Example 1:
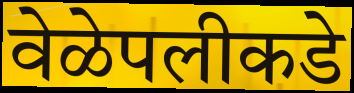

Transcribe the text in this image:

वेळेपलीकडे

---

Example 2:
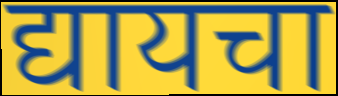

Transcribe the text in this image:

द्यायचा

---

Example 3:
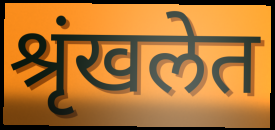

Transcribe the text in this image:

श्रृंखलेत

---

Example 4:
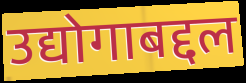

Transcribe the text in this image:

उद्योगाबद्दल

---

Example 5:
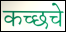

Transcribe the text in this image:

कच्छचे